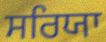
ਸਰਿਯਾ